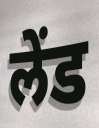
लेंड